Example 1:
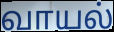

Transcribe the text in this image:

வாயல்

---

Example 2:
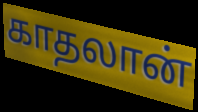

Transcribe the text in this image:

காதலான்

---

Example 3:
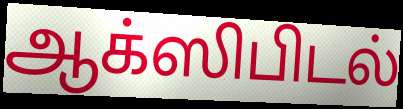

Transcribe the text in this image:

ஆக்ஸிபிடல்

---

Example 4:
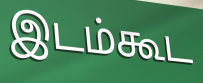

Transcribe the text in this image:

இடம்கூட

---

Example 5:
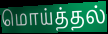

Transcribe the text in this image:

மொய்த்தல்